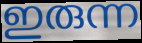
ഇരുന്ന